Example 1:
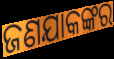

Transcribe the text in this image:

ଜଣଯାକଙ୍କର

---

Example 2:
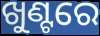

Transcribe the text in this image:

ଖୁଣ୍ଟରେ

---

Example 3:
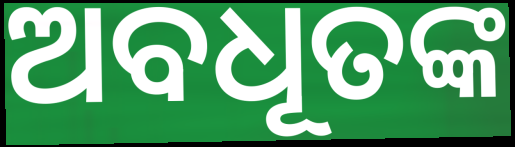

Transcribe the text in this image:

ଅବଧୂତଙ୍କ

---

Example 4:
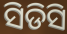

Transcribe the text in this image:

ସିଡିସି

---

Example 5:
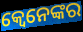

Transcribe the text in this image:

କ୍ବେନେଙ୍କର